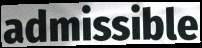
admissible